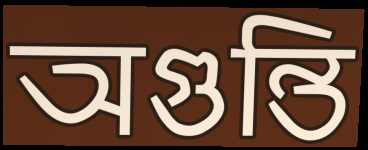
অগুন্তি